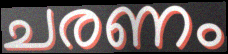
ചരണം